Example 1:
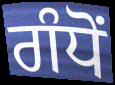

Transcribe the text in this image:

ਗੰਧੋਂ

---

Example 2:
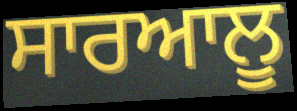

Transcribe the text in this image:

ਸਾਰਆਲੂ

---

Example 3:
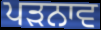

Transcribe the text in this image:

ਪੜਨਾਵ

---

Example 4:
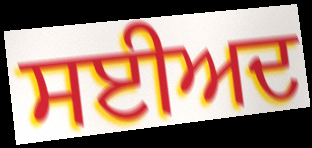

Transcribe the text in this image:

ਸਈਅਦ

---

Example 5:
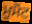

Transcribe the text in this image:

ਮੂਮੈਂਟ